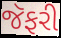
જૅફરી